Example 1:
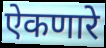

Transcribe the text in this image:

ऐकणारे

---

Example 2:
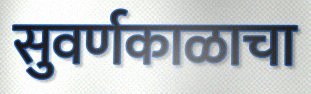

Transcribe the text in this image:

सुवर्णकाळाचा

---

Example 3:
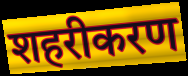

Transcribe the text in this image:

शहरीकरण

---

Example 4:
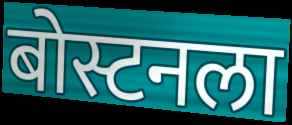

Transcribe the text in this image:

बोस्टनला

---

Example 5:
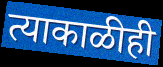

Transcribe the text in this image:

त्याकाळीही